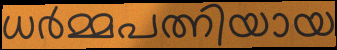
ധർമ്മപത്നിയായ